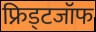
फ्रिड्टजॉफ